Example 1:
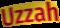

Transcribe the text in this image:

Uzzah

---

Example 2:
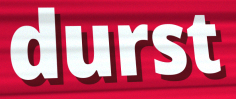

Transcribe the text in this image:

durst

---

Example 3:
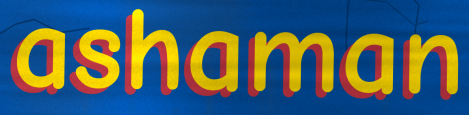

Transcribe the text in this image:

ashaman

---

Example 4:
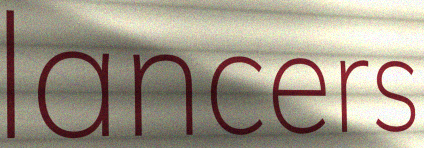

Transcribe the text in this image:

lancers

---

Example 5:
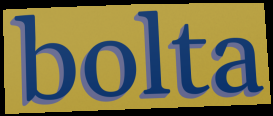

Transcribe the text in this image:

bolta